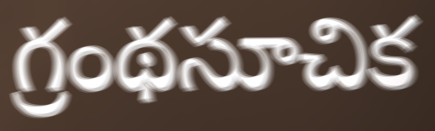
గ్రంథసూచిక